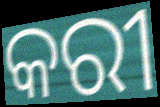
କରୀ